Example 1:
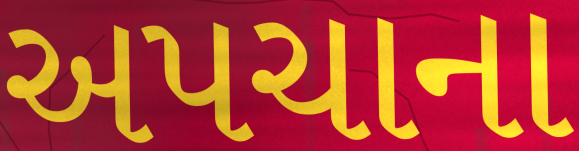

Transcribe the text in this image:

અપચાના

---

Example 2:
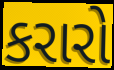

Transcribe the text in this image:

કરારો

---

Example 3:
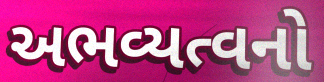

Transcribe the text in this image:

અભવ્યત્વનો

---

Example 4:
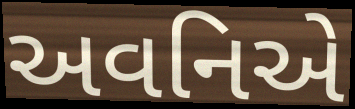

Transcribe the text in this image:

અવનિએ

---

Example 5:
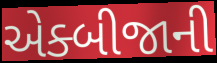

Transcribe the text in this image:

એક્બીજાની